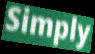
Simply